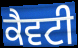
ਕੈਵਟੀ